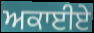
ਅਕਾਈਏ